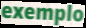
exemplo